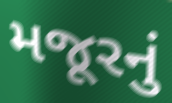
મજૂરનું